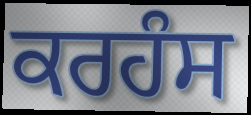
ਕਰਹੰਸ